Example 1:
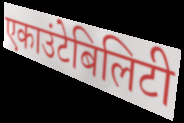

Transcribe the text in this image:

एकाउंटेबिलिटी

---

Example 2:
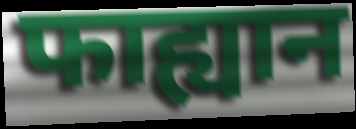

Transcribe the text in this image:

फाह्यान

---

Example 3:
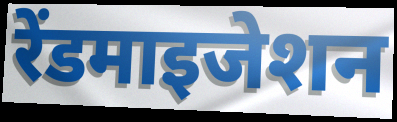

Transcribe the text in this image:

रेंडमाइजेशन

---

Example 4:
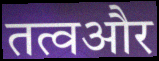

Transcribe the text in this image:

तत्वऔर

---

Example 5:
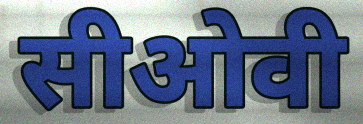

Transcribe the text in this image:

सीओवी